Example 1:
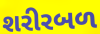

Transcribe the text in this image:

શરીરબળ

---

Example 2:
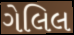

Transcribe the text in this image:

ગેલિલ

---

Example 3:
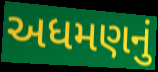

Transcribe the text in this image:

અધમણનું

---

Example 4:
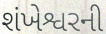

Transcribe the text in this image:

શંખેશ્વરની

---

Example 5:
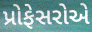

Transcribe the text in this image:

પ્રોફેસરોએ